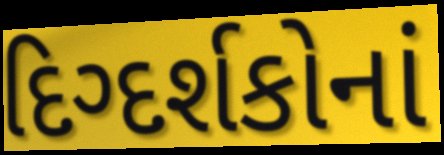
દિગ્દર્શકોનાં